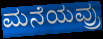
ಮನೆಯವ್ರು